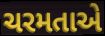
ચરમતાએ